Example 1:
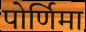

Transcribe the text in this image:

पोर्णिमा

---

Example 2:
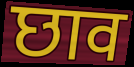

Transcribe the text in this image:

छाव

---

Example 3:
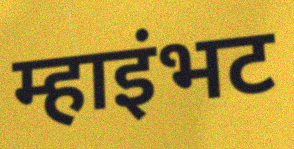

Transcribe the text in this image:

म्हाइंभट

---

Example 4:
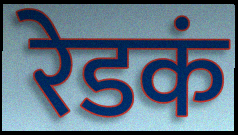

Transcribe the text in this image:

रेडकं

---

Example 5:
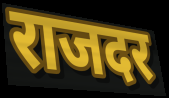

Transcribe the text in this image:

राजदर